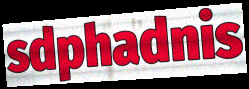
sdphadnis